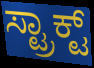
ಸ್ಟ್ರಾಕ್ಟ್